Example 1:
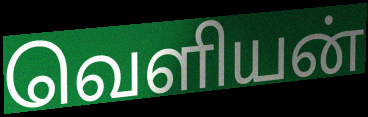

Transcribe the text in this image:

வெளியன்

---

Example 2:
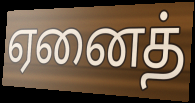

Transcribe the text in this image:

ஏனைத்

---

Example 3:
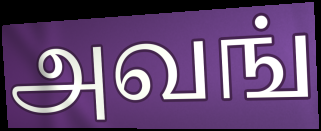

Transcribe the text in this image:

அவங்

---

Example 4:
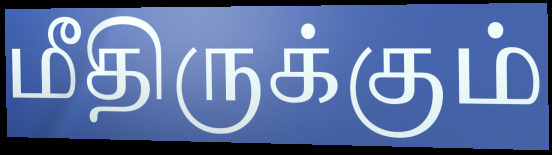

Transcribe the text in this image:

மீதிருக்கும்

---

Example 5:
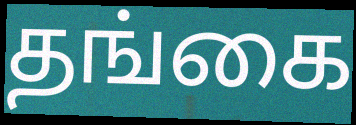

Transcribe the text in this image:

தங்கை